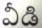
వీడి